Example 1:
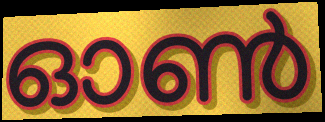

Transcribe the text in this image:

ഓൺ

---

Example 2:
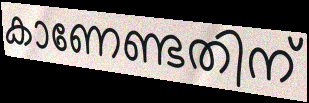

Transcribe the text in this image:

കാണേണ്ടതിന്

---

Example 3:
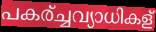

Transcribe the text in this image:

പകര്ച്ചവ്യാധികള്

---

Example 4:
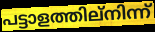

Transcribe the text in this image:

പട്ടാളത്തില്നിന്ന്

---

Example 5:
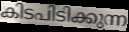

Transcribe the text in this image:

കിടപിടിക്കുന്ന